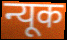
न्यूक